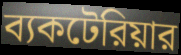
ব্যকটেরিয়ার